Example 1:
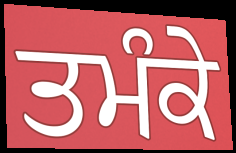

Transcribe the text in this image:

ਤਮੰਕੇ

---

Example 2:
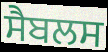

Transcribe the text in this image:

ਸੈਬਲਸ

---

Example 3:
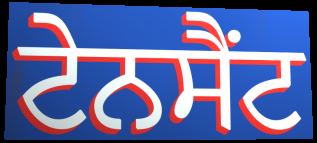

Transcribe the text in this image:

ਟੇਨਸੈਂਟ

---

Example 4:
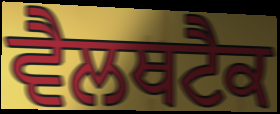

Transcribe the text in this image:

ਵੈਲਥਟੈਕ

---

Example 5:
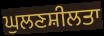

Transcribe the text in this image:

ਘੁਲਣਸ਼ੀਲਤਾ